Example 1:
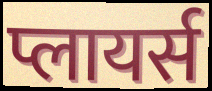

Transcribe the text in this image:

प्लायर्स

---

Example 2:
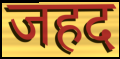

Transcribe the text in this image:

जहद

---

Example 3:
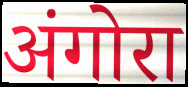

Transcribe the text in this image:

अंगोरा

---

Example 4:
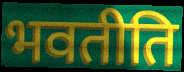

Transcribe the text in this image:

भवतीति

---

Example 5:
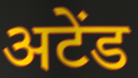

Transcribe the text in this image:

अटेंड